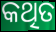
କଥିତ